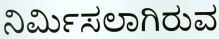
ನಿರ್ಮಿಸಲಾಗಿರುವ